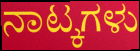
ನಾಟ್ಕಗಳು